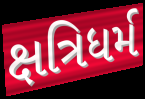
ક્ષત્રિધર્મ